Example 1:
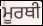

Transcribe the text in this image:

ਮੂਰਥੀ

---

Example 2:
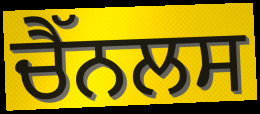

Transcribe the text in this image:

ਚੈੱਨਲਸ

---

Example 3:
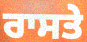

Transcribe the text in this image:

ਰਾਸਤੇ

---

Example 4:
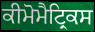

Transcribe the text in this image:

ਕੀਮੋਮੈਟ੍ਰਿਕਸ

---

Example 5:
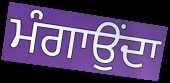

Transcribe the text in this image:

ਮੰਗਾਉਂਦਾ